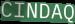
CINDAQ